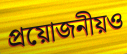
প্রয়োজনীয়ও